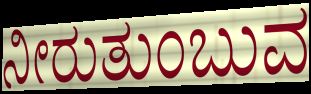
ನೀರುತುಂಬುವ